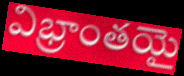
విభ్రాంతయై